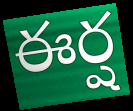
ఈర్ష